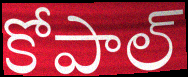
కోపాల్